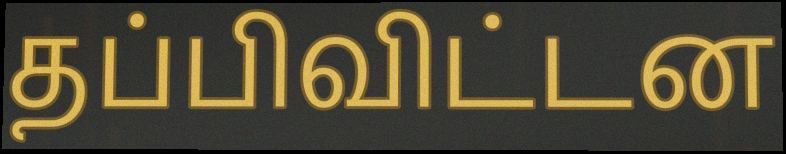
தப்பிவிட்டன